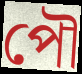
পৌ